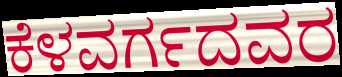
ಕೆಳವರ್ಗದವರ